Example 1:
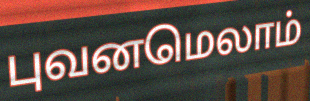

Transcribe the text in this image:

புவனமெலாம்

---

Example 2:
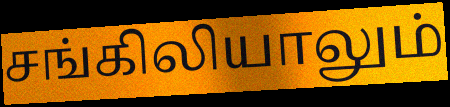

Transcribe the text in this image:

சங்கிலியாலும்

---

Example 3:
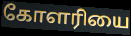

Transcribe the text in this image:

கோளரியை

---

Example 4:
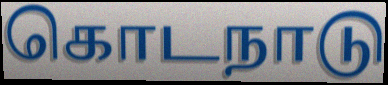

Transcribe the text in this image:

கொடநாடு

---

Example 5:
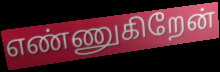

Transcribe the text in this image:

எண்ணுகிறேன்